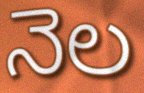
నెల